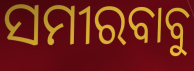
ସମୀରବାବୁ